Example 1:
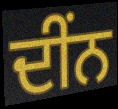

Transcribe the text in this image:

ਦੀਂਨ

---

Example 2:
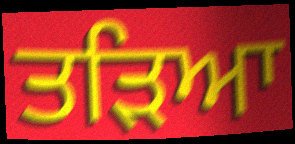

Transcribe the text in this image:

ਤੜਿਆ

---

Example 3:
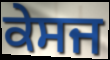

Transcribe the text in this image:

ਕੇਸਜ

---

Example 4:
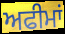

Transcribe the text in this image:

ਅਫੀਮਾਂ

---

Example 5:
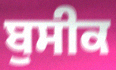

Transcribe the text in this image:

ਬੁਸੀਕ